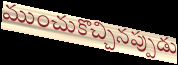
ముంచుకొచ్చినప్పుడు